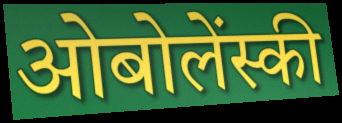
ओबोलेंस्की